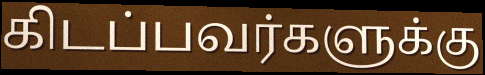
கிடப்பவர்களுக்கு